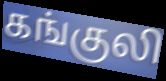
கங்குலி